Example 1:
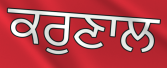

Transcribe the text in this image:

ਕਰੁਣਾਲ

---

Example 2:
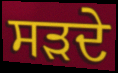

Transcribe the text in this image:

ਸੜਦੇ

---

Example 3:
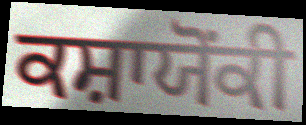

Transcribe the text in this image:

ਕਸ਼ਾਯੋਂਕੀ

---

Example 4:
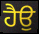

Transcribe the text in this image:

ਹੈਉ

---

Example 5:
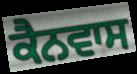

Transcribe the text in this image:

ਕੈਨਵਾਸ